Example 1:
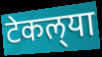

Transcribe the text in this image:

टेकल्या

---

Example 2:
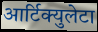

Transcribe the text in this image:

आर्टिक्युलेटा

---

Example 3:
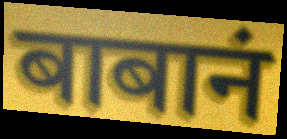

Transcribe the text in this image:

बाबानं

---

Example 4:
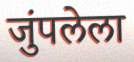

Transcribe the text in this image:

जुंपलेला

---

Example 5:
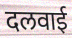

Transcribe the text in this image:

दलवाई